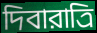
দিবারাত্রি